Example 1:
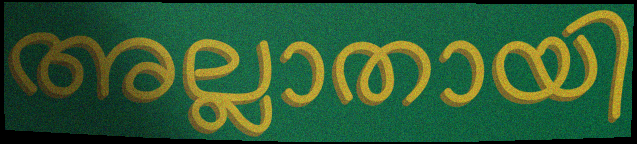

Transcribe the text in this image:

അല്ലാതായി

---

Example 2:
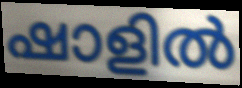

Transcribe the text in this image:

ഷാളിൽ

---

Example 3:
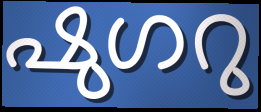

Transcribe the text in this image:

ഷുഗറു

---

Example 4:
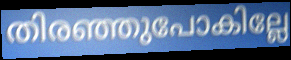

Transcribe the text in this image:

തിരഞ്ഞുപോകില്ലേ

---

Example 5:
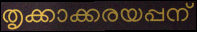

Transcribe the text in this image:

തൃക്കാക്കരയപ്പന്